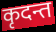
कृदन्त